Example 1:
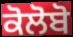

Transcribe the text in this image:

ਕੋਲੋਬੋ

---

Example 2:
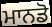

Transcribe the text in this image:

ਮਾਨਡੋ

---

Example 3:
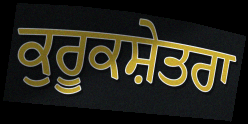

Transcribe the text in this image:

ਕੁਰੂਕਸ਼ੇਤਰਾ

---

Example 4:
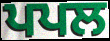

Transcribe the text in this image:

ਪਪਲ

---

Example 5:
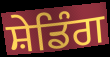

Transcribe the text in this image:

ਸ਼ੇਡਿੰਗ